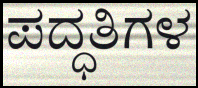
ಪದ್ಧತಿಗಳ